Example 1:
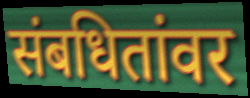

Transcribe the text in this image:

संबधितांवर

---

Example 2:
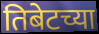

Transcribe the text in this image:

तिबेटच्या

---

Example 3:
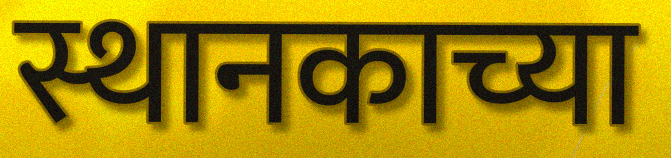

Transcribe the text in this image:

स्थानकाच्या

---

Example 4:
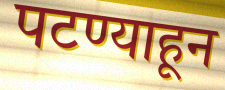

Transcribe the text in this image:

पटण्याहून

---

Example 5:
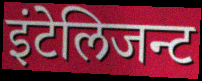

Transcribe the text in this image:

इंटेलिजन्ट